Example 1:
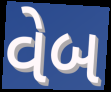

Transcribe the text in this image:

વેબ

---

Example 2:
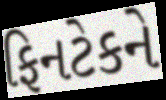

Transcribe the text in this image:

ફિનટેકને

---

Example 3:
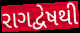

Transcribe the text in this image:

રાગદ્વેષથી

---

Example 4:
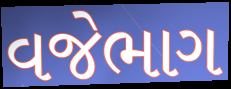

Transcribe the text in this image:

વજેભાગ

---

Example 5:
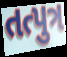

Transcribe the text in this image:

તત્પુત્ર